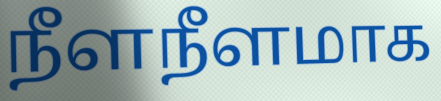
நீளநீளமாக